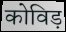
कोविड़